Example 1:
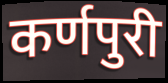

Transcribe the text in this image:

कर्णपुरी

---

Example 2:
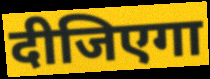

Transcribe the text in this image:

दीजिएगा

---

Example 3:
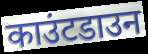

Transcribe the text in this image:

काउंटडाउन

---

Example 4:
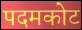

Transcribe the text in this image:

पदमकोट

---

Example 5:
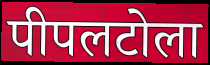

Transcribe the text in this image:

पीपलटोला